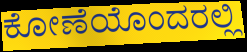
ಕೋಣೆಯೊಂದರಲ್ಲಿ